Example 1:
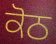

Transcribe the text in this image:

ਕੋਠ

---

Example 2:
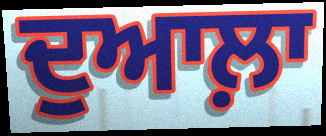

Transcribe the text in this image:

ਦੁਆਲ਼ਾ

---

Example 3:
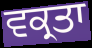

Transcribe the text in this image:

ਵਕ੍ਰਤਾ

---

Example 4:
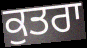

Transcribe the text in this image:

ਕੁਤਰਾ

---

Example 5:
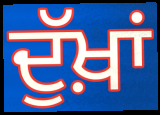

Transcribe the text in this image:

ਦੁੱਖ਼ਾਂ